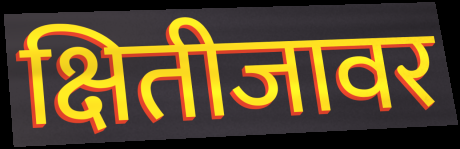
क्षितीजावर